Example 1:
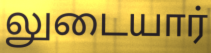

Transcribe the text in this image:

லுடையார்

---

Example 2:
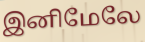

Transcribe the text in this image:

இனிமேலே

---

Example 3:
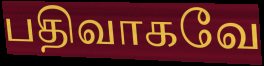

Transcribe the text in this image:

பதிவாகவே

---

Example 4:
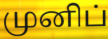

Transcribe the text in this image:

முனிப்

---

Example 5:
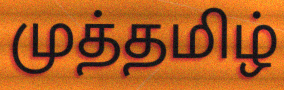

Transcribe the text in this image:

முத்தமிழ்